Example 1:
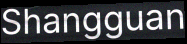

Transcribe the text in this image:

Shangguan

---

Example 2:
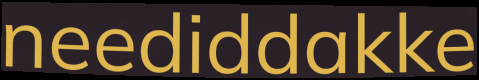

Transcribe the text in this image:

neediddakke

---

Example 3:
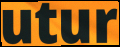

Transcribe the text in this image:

utur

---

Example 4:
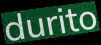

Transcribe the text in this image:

durito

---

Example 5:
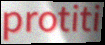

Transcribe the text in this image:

protiti